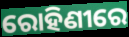
ରୋହିଣୀରେ